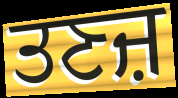
ਤਣਜ਼